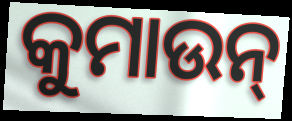
କୁମାଉନ୍